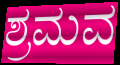
ಶ್ರಮವ